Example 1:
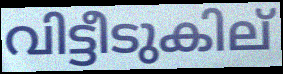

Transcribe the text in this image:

വിട്ടീടുകില്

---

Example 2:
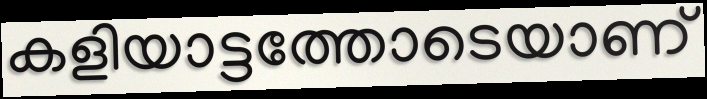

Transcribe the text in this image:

കളിയാട്ടത്തോടെയാണ്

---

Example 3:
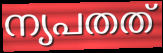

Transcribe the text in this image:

ന്യപതത്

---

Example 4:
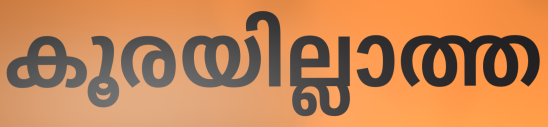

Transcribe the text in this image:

കൂരയില്ലാത്ത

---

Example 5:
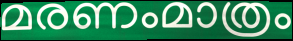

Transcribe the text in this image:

മരണംമാത്രം